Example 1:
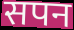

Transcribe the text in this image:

सपन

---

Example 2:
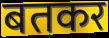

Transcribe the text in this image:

बतकर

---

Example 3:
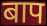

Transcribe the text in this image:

बाप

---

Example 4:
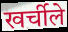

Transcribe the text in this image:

खर्चीले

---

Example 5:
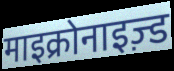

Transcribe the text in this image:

माइक्रोनाइज़्ड